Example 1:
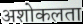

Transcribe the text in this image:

अशोकलता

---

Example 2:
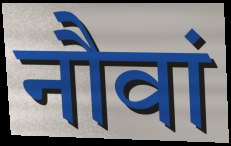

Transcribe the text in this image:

नौवां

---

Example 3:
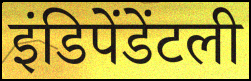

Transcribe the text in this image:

इंडिपेंडेंटली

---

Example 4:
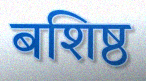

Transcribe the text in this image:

बशिष्ठ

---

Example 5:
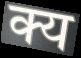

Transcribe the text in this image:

क्य